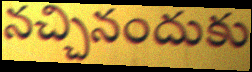
నచ్చినందుకు